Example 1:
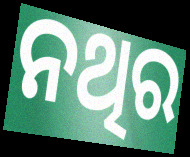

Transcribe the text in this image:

ନଥିର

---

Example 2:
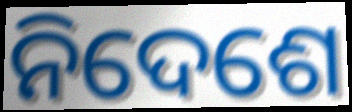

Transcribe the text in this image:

ନିଦେଶେ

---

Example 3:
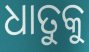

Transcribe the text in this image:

ଧାତୁକୁ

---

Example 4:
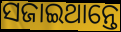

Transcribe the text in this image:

ସଜାଇଥାନ୍ତେ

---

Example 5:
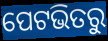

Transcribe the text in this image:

ପେଟଭିତରୁ